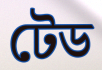
টেড